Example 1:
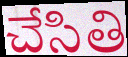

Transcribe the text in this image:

చేసితి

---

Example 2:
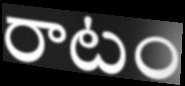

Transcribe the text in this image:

రాటం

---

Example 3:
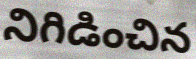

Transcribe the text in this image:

నిగిడించిన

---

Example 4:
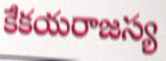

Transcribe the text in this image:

కేకయరాజస్య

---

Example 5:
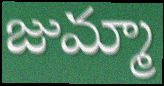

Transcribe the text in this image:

జుమ్మా